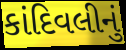
કાંદિવલીનું